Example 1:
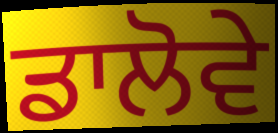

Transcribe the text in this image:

ਡਾਲੋਵੇ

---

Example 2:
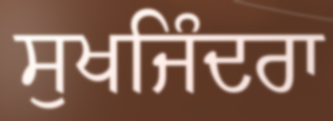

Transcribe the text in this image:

ਸੁਖਜਿੰਦਰਾ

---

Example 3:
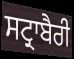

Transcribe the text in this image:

ਸਟ੍ਰਾਬੈਰੀ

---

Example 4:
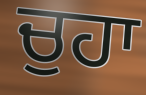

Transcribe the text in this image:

ਚੁਹਾ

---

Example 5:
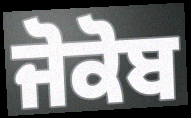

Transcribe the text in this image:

ਜੋਕੋਬ